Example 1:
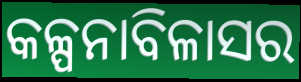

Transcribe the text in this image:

କଳ୍ପନାବିଳାସର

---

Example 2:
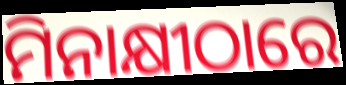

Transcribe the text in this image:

ମିନାକ୍ଷୀଠାରେ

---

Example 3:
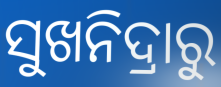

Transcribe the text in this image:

ସୁଖନିଦ୍ରାରୁ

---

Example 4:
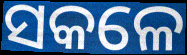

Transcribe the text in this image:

ସକଳେ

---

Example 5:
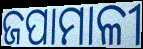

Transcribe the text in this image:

ଜପାମାଳୀ